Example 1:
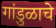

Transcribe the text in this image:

गांडुळाचे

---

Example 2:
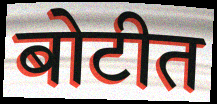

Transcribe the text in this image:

बोटीत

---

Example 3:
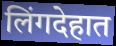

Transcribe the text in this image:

लिंगदेहात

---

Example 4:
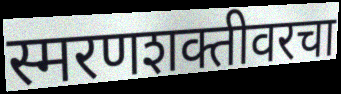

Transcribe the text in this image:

स्मरणशक्तीवरचा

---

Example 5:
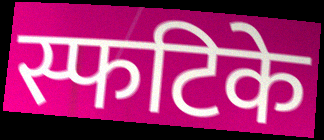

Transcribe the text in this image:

स्फटिके